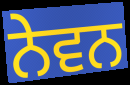
ਨੇਵਨ